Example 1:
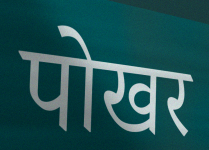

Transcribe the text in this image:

पोखर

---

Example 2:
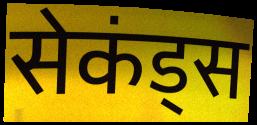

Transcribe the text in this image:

सेकंड्स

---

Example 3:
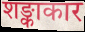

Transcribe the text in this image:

शङ्काकार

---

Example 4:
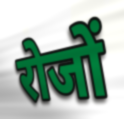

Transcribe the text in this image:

रोजों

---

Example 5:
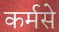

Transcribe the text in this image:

कर्मसे